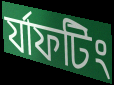
র্যাফটিং